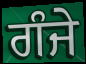
ਗੰਜੇ